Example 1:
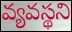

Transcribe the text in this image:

వ్యవస్థని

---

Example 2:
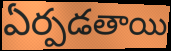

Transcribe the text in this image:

ఏర్పడతాయి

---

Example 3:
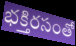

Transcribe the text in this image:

భక్తిరసంతో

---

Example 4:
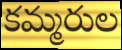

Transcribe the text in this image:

కమ్మరుల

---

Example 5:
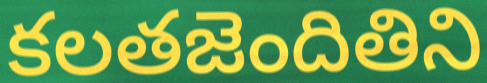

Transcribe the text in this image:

కలతజెందితిని